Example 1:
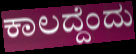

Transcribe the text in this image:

ಕಾಲದ್ದೆಂದು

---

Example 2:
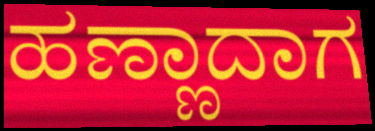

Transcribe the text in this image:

ಹಣ್ಣಾದಾಗ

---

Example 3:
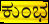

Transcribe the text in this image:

ಕುಂಭ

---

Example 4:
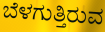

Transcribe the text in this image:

ಬೆಳಗುತ್ತಿರುವ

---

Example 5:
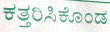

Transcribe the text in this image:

ಕತ್ತರಿಸಿಕೊಂಡ